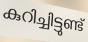
കുറിച്ചിട്ടുണ്ട്